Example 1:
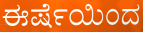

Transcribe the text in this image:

ಈರ್ಷೆಯಿಂದ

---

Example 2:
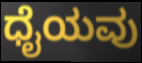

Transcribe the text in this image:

ಧೈಯವು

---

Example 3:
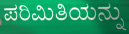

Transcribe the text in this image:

ಪರಿಮಿತಿಯನ್ನು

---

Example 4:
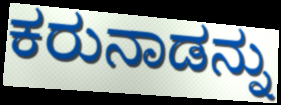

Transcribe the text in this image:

ಕರುನಾಡನ್ನು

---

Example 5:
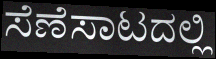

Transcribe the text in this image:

ಸೆಣೆಸಾಟದಲ್ಲಿ